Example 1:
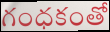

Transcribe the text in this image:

గంధకంతో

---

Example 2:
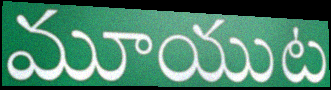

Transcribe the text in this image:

మూయుట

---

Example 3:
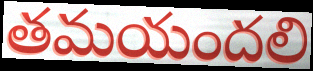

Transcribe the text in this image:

తమయందలి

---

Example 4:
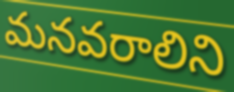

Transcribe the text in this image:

మనవరాలిని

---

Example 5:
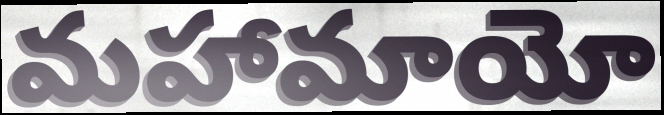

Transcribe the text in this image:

మహామాయో